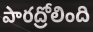
పారద్రోలింది